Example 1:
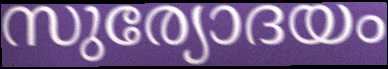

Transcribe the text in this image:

സുര്യോദയം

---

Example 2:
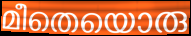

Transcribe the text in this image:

മീതെയൊരു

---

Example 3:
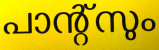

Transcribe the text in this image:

പാന്റ്സും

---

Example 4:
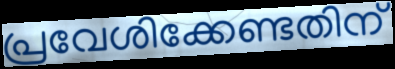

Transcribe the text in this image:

പ്രവേശിക്കേണ്ടതിന്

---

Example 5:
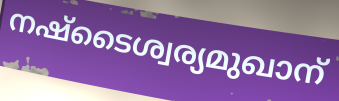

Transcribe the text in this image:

നഷ്ടൈശ്വര്യമുഖാന്